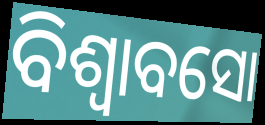
ବିଶ୍ୱାବସୋ